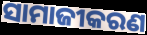
ସାମାଜୀକରଣ